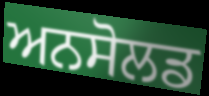
ਅਨਸੋਲਡ